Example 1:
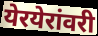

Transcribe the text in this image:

येरयेरांवरी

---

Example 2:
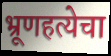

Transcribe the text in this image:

भ्रूणहत्येचा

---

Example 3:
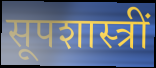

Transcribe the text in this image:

सूपशास्त्रीं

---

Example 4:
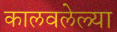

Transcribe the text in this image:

कालवलेल्या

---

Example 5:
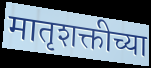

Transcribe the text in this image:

मातृशक्तीच्या